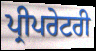
ਪ੍ਰੀਪਰੇਟਰੀ